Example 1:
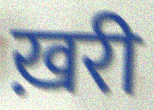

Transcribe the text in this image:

ख़री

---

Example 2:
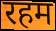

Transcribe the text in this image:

रहम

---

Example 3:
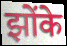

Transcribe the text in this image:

झोंके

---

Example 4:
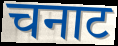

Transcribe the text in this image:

चनाट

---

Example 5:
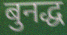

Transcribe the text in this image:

बुनद्ध